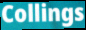
Collings